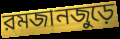
রমজানজুড়ে